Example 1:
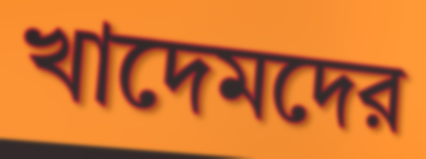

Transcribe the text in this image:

খাদেমদের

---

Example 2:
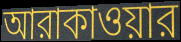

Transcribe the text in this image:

আরাকাওয়ার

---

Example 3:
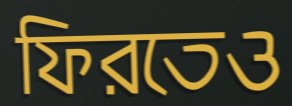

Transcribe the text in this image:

ফিরতেও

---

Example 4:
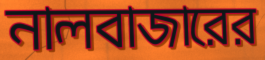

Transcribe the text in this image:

নালবাজারের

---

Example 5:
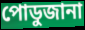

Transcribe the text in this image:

পোডুজানা